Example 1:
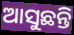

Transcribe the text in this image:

ଆସୁଛନ୍ତି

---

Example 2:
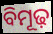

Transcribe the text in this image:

ବିମୂଢ଼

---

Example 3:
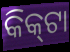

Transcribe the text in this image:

କିକ୍‍ଟା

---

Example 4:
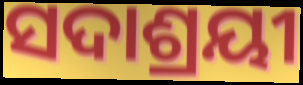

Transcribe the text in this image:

ସଦାଶ୍ରୟୀ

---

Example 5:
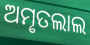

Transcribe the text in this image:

ଅମୃତଲାଲ